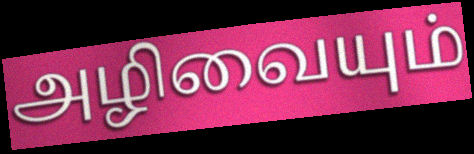
அழிவையும்